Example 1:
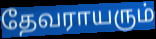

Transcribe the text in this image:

தேவராயரும்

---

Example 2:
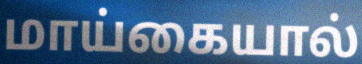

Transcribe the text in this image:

மாய்கையால்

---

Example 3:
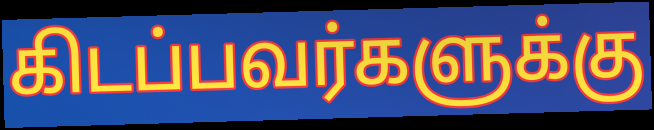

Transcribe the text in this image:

கிடப்பவர்களுக்கு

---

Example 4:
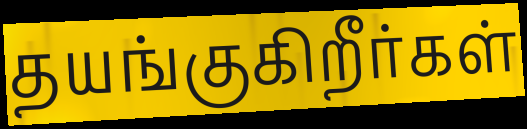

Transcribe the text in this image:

தயங்குகிறீர்கள்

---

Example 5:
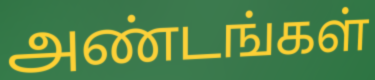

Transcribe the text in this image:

அண்டங்கள்